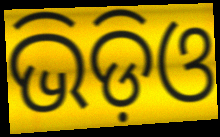
ଭିଡ଼ିଓ